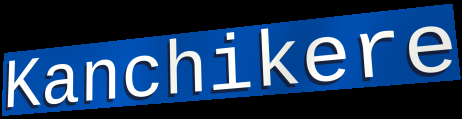
Kanchikere